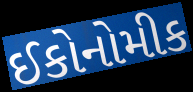
ઈકોનોમીક